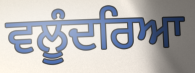
ਵਲੂੰਦਰਿਆ